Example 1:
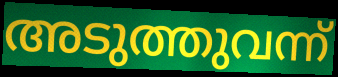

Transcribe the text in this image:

അടുത്തുവന്ന്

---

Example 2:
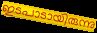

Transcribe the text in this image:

ഇടപാടായിരുന്നു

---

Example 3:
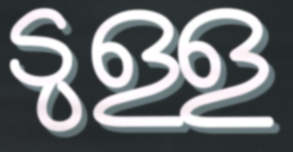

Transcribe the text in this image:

ടുള്ള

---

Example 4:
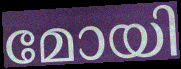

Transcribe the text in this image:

മോയി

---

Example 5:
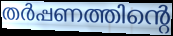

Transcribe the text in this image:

തർപ്പണത്തിന്റെ